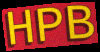
HPB